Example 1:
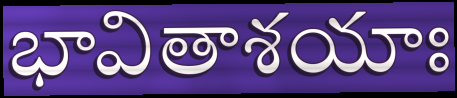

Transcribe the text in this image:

భావితాశయాః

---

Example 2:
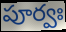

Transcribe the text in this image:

పూర్వః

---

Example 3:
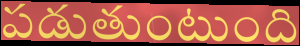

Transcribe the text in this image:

పడుతుంటుంది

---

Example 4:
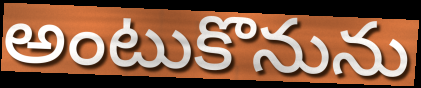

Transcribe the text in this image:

అంటుకొనును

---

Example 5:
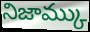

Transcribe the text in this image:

నిజామ్కు